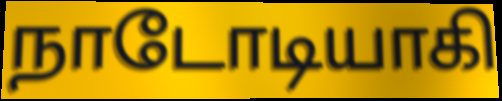
நாடோடியாகி